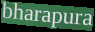
bharapura